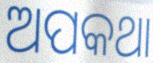
ଅପକଥା